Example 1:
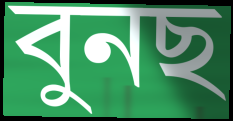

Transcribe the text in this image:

বুনছ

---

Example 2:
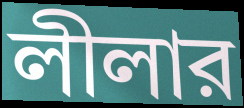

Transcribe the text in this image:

লীলার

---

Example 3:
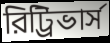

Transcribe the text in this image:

রিট্রিভার্স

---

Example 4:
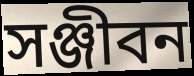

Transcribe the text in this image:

সঞ্জীবন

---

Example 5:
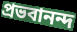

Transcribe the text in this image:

প্রভবানন্দ